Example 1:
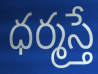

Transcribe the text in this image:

ధర్మస్తే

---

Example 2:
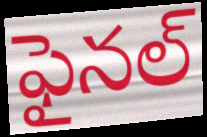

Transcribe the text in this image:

ఫైనల్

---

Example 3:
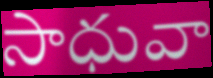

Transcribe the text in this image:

సాధువా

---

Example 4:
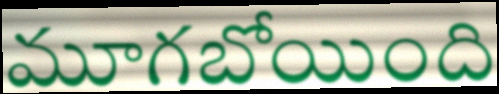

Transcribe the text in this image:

మూగబోయింది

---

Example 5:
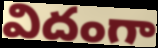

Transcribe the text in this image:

విదంగా